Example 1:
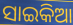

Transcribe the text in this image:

ସାଇକିଆ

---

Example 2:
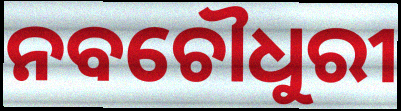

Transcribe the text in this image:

ନବଚୌଧୁରୀ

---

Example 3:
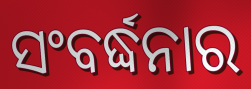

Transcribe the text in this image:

ସଂବର୍ଦ୍ଧନାର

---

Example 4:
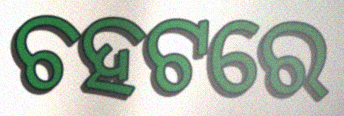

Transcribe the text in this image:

ଚହଟରେ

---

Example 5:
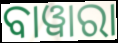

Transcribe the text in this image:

ବାୱାରା